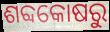
ଶବ୍ଦକୋଷରୁ